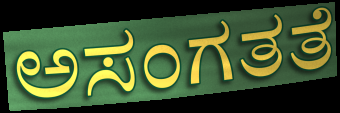
ಅಸಂಗತತೆ